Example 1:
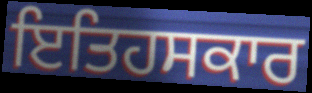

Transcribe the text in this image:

ਇਤਿਹਸਕਾਰ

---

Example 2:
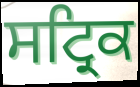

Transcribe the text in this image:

ਸਟ੍ਰਿਕ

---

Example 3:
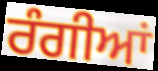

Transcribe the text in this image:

ਰੰਗੀਆਂ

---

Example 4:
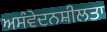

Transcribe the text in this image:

ਅਸੰਵੇਦਨਸ਼ੀਲਤਾ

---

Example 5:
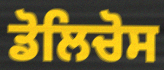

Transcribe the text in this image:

ਡੋਲਿਚੋਸ